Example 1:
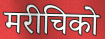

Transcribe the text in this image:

मरीचिको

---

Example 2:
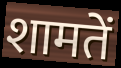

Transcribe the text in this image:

शामतें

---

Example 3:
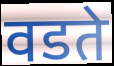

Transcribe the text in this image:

वडते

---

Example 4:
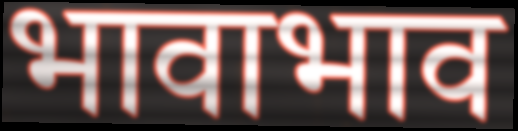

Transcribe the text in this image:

भावाभाव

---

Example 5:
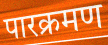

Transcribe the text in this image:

पारक्रमण